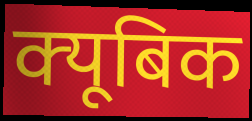
क्‍यूबिक